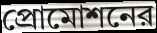
প্রোমোশনের